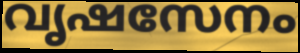
വൃഷസേനം